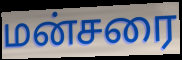
மன்சரை